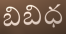
బిబిధ